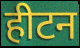
हीटन